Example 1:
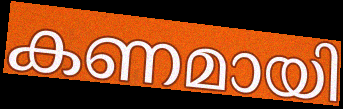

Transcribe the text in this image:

കണമായി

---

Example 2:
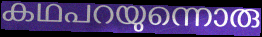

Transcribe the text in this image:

കഥപറയുന്നൊരു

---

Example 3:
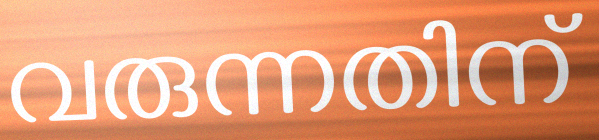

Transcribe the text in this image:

വരുന്നതിന്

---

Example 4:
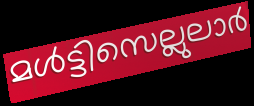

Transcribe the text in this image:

മൾട്ടിസെല്ലുലാർ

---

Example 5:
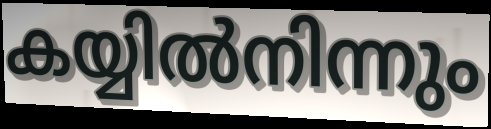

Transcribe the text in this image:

കയ്യിൽനിന്നും